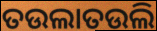
ତଉଲାତଉଲି